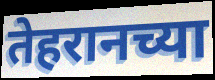
तेहरानच्या